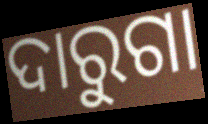
ଦାରୁଗା